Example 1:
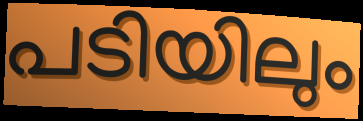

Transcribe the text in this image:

പടിയിലും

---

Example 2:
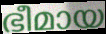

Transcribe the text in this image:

ഭീമായ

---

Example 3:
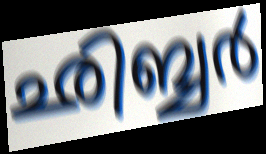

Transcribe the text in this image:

ഛിബ്ബർ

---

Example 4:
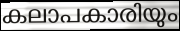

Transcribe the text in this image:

കലാപകാരിയും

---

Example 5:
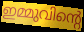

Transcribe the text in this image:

ഇമ്മുവിന്റെ